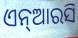
ଏନ୍ଆରସି